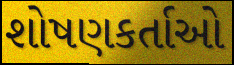
શોષણકર્તાઓ